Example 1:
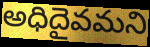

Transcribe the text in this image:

అధిదైవమని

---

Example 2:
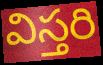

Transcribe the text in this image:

విస్తరి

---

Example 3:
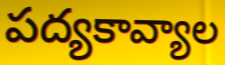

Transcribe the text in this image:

పద్యకావ్యాల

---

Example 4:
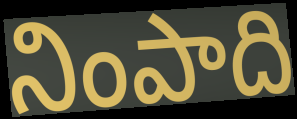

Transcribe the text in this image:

నింపాది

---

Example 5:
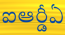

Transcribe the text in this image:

ఐఆర్డీఏ